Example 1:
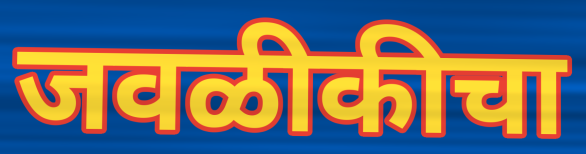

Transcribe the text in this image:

जवळीकीचा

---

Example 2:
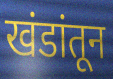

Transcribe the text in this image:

खंडांतून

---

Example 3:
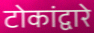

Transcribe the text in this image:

टोकांद्वारे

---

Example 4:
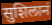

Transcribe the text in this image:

सुशिलानं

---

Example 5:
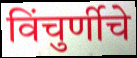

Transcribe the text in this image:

विंचुर्णीचे